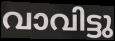
വാവിട്ടു